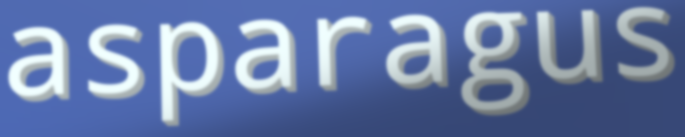
asparagus